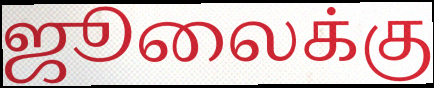
ஜூலைக்கு